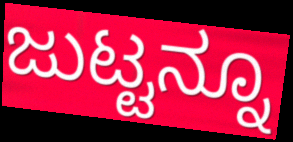
ಜುಟ್ಟನ್ನೂ